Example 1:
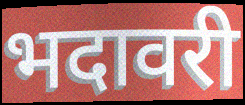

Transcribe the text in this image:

भदावरी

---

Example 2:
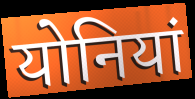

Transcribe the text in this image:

योनियां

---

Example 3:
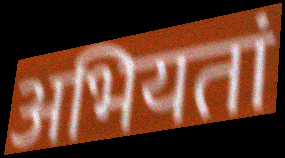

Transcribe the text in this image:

अभियतां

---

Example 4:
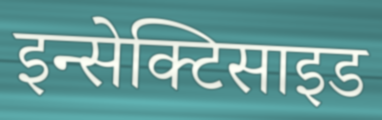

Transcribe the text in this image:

इन्सेक्टिसाइड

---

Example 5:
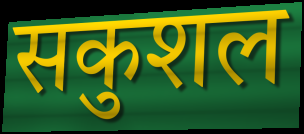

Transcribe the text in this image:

सकुशल